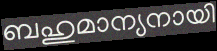
ബഹുമാന്യനായി